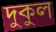
দুকুল